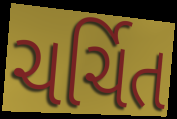
ચર્ચિત